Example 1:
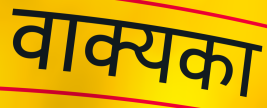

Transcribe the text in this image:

वाक्यका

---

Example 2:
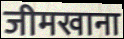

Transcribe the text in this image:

जीमखाना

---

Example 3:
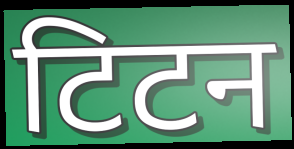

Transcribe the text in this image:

टिटन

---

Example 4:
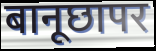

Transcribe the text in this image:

बानूछापर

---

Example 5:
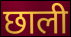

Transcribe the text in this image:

छाली